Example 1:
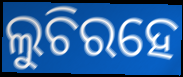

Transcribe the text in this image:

ଲୁଚିରହେ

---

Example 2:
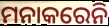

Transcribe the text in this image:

ମନାକରେନି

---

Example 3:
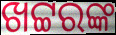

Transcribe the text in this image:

ଖଟ୍ଟରଙ୍କ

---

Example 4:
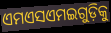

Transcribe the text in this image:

ଏମଏସଏମଇଗୁଡ଼ିକୁ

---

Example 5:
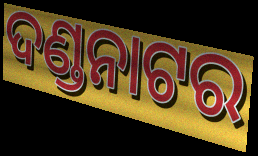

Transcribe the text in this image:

ଦଣ୍ଡନାଟର